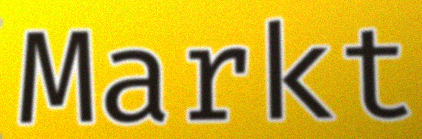
Markt